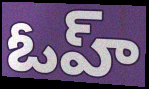
ఓహ్